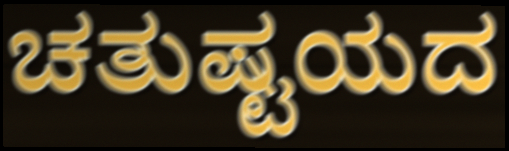
ಚತುಷ್ಟಯದ